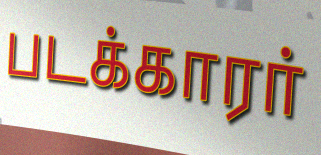
படக்காரர்